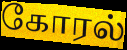
கோரல்